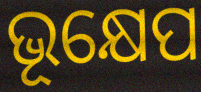
ଭୂକ୍ଷେପ